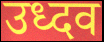
उध्दव